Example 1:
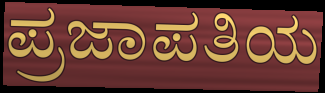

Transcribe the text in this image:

ಪ್ರಜಾಪತಿಯ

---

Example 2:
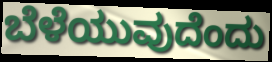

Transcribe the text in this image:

ಬೆಳೆಯುವುದೆಂದು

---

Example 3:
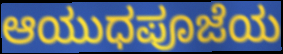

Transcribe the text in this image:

ಆಯುಧಪೂಜೆಯ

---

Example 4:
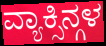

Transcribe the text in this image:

ವ್ಯಾಕ್ಸಿನ್ಗಳ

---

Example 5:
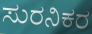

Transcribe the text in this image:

ಸುರನಿಕರ